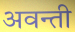
अवन्ती